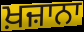
ਖ਼ਜ਼ਾਨਾ